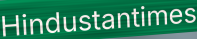
Hindustantimes